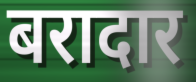
बरादार